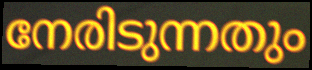
നേരിടുന്നതും